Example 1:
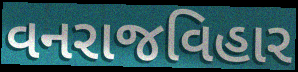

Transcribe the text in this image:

વનરાજવિહાર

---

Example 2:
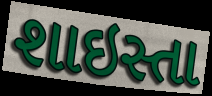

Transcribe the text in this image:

શાઇસ્તા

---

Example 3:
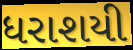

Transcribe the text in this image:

ધરાશયી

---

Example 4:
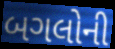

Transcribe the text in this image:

બગલોની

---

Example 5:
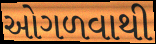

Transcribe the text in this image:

ઓગળવાથી